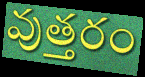
వుత్తరం